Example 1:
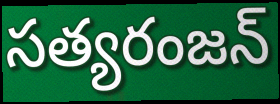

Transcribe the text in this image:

సత్యరంజన్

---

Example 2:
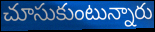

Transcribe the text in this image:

చూసుకుంటున్నారు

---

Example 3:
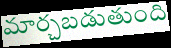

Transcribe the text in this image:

మార్చబడుతుంది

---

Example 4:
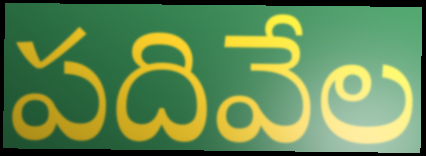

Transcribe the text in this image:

పదివేల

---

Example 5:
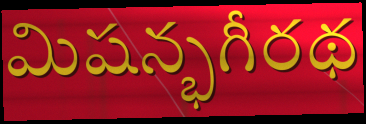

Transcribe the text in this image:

మిషన్భగీరథ